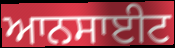
ਆਨਸਾਈਟ